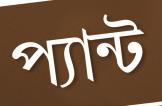
প্যান্ট